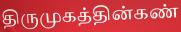
திருமுகத்தின்கண்